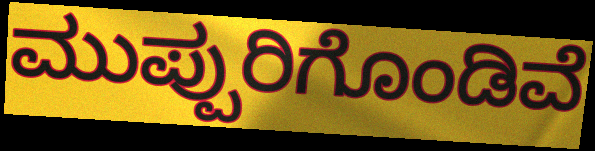
ಮುಪ್ಪುರಿಗೊಂಡಿವೆ